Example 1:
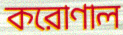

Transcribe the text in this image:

করোণাল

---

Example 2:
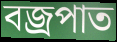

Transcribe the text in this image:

বজ্রপাত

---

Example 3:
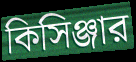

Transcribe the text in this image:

কিসিঞ্জার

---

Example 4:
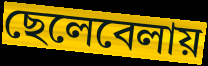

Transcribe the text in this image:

ছেলেবেলায়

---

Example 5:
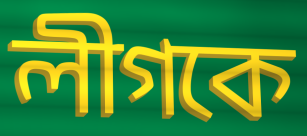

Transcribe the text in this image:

লীগকে